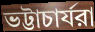
ভট্টাচার্যরা